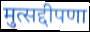
मुत्सद्दीपणा